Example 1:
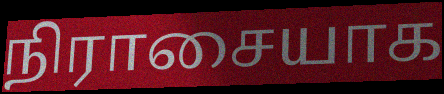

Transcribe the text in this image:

நிராசையாக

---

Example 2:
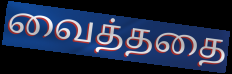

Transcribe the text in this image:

வைத்ததை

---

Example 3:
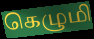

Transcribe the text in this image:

கெழுமி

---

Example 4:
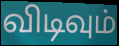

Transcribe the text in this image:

விடிவும்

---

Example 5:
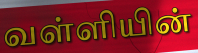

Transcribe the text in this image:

வள்ளியின்